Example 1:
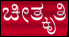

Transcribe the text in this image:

ಚೀತ್ಕೃತಿ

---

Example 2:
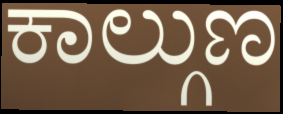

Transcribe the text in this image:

ಕಾಲ್ಗುಣ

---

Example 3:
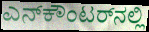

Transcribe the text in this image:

ಎನ್‌ಕೌಂಟರ್‌ನಲ್ಲಿ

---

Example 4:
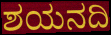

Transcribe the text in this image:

ಶಯನದಿ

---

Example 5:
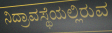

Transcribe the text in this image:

ನಿದ್ರಾವಸ್ಥೆಯಲ್ಲಿರುವ